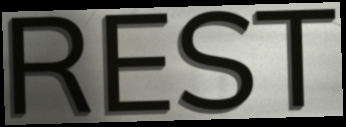
REST